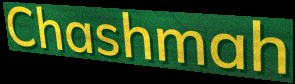
Chashmah